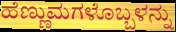
ಹೆಣ್ಣುಮಗಳೊಬ್ಬಳನ್ನು